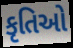
કૃતિઓ